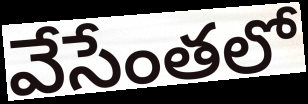
వేసేంతలో